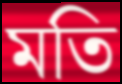
মতি